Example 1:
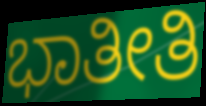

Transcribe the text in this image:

ಭಾತೀತಿ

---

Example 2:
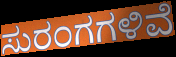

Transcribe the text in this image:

ಸುರಂಗಗಳಿವೆ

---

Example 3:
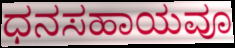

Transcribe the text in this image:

ಧನಸಹಾಯವೂ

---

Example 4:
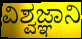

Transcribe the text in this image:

ವಿಶ್ವಜ್ಞಾನಿ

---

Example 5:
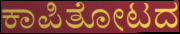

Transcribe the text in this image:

ಕಾಪಿತೋಟದ